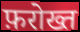
फ़रोख्त